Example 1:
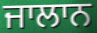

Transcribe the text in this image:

ਜਾਲਾਨ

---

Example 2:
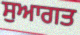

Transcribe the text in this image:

ਸੁਆਗਤ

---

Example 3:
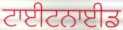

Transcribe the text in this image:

ਟਾਈਟਨਾਈਡ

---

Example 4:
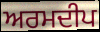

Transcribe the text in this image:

ਅਰਮਦੀਪ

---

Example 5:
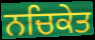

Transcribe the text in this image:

ਨਚਿਕੇਤ